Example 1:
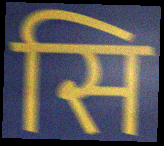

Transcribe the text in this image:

सि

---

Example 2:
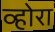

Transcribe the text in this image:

व्होरा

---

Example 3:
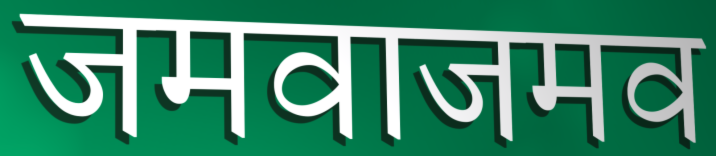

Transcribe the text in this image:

जमवाजमव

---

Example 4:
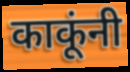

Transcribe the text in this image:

काकूंनी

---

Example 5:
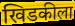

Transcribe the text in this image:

खिडकीला